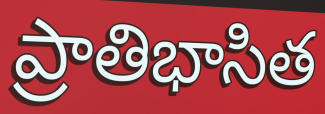
ప్రాతిభాసిత